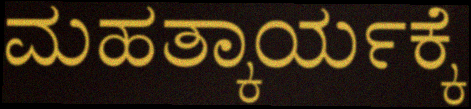
ಮಹತ್ಕಾರ್ಯಕ್ಕೆ